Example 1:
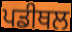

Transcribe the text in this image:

ਪਡੀਥਲ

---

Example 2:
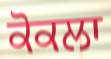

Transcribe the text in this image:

ਕੋਕਲਾ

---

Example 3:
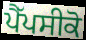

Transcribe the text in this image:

ਪੈੱਪਸੀਕੋ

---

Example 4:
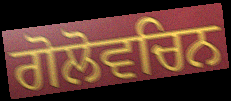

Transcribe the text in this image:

ਗੋਲੋਵਚਿਨ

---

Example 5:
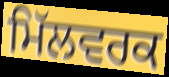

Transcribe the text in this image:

ਮਿੱਲਵਰਕ